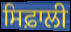
ਸਿਫ਼ਾਲੀ